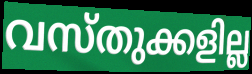
വസ്തുക്കളില്ല